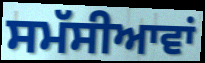
ਸਮੱਸੀਆਵਾਂ